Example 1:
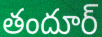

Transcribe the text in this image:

తందూర్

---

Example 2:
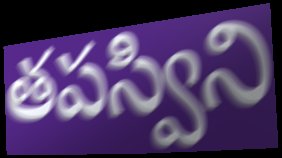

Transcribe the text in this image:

తపస్విని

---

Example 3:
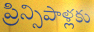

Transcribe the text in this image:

ప్రిన్సిపాళ్లకు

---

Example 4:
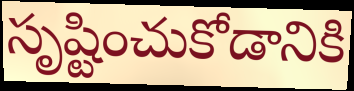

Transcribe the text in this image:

సృష్టించుకోడానికి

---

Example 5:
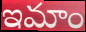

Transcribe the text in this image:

ఇమాం